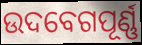
ଉଦବେଗପୂର୍ଣ୍ଣ